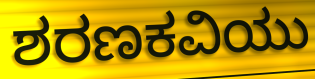
ಶರಣಕವಿಯು